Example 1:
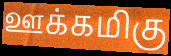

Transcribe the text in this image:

ஊக்கமிகு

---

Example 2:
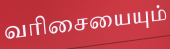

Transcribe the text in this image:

வரிசையையும்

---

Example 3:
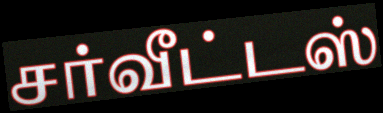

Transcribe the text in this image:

சர்வீட்டஸ்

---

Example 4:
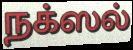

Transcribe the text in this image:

நக்ஸல்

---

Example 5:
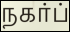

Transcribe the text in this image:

நகர்ப்